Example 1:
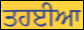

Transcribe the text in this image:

ਤਹਈਆ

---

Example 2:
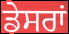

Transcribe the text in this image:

ਡੇਸਰਾਂ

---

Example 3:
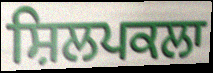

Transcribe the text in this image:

ਸ਼ਿਲਪਕਲਾ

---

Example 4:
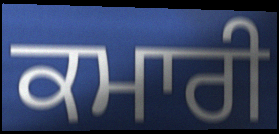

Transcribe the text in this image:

ਕਮਾਰੀ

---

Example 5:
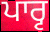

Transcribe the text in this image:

ਪਾਰ੍ਟ